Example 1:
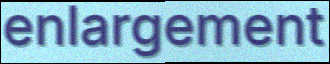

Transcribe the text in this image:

enlargement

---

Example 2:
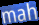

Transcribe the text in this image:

mah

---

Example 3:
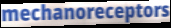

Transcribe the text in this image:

mechanoreceptors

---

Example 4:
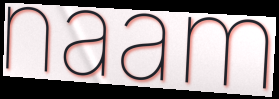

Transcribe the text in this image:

naam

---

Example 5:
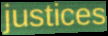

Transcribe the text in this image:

justices